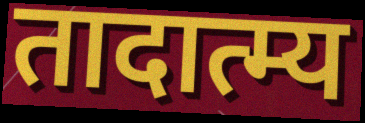
तादात्म्य